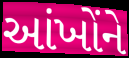
આંખોંને